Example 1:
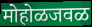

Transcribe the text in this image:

मोहोळजवळ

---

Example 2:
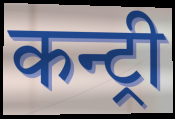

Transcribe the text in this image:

कन्ट्री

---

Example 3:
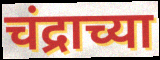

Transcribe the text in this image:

चंद्राच्या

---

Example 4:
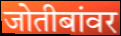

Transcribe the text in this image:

जोतीबांवर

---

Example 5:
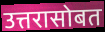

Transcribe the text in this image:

उत्तरासोबत